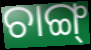
ଚାଙ୍ଗ୍